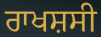
ਰਾਖਸ਼ਸੀ